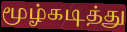
மூழ்கடித்து